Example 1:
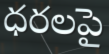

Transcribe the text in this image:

ధరలపై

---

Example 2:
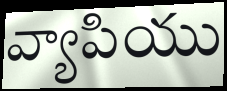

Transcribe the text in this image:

వ్యాపియు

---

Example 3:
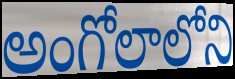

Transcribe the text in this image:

అంగోలాలోని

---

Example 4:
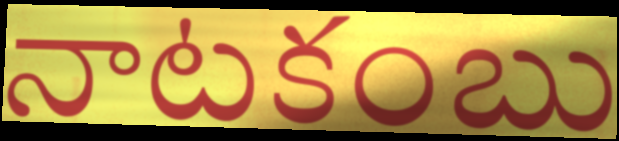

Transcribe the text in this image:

నాటకంబు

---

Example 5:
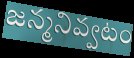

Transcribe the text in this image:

జన్మనివ్వటం